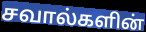
சவால்களின்